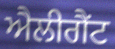
ਐਲੀਗੈਂਟ